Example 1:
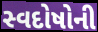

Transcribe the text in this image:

સ્વદોષોની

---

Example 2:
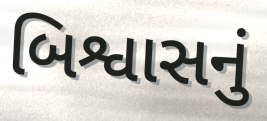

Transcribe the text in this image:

બિશ્વાસનું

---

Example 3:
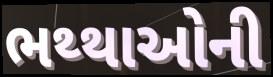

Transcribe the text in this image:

ભથ્થાઓની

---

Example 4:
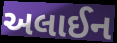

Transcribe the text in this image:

અલાઈન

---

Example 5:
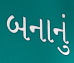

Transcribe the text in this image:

બનાનું